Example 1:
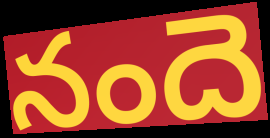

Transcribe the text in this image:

నందె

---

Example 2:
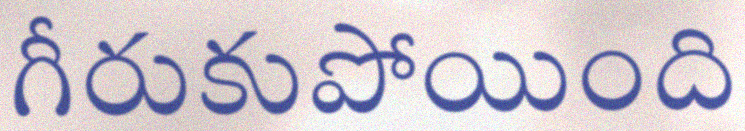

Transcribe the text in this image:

గీరుకుపోయింది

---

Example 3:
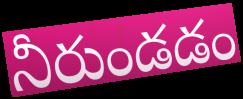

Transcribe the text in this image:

నీరుండడం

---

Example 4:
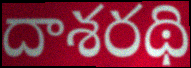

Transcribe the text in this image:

దాశరథి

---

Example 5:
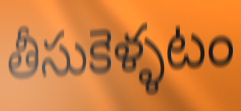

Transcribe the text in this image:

తీసుకెళ్ళటం